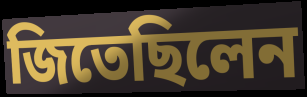
জিতেছিলেন